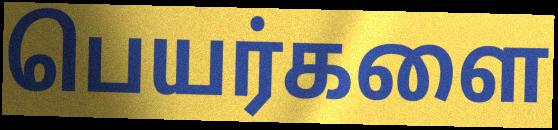
பெயர்களை